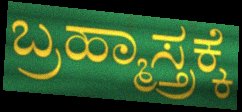
ಬ್ರಹ್ಮಾಸ್ತ್ರಕ್ಕೆ